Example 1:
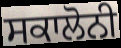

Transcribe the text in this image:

ਸਕਾਲੋਨੀ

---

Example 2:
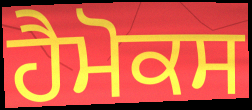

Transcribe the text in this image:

ਹੈਮੋਕਸ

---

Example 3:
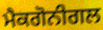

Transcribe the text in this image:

ਮੈਕਗੋਨੀਗਲ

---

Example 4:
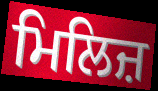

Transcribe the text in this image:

ਮਿਲਿਜ਼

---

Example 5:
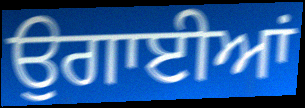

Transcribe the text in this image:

ਉਗਾਈਆਂ